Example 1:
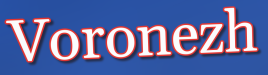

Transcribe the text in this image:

Voronezh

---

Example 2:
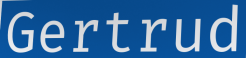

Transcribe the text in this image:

Gertrud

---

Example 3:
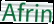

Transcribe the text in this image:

Afrin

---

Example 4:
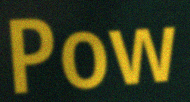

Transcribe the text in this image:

Pow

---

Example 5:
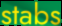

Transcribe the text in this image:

stabs